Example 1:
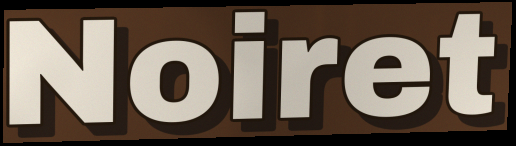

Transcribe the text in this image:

Noiret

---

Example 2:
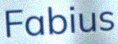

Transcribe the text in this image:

Fabius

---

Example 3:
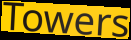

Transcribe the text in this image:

Towers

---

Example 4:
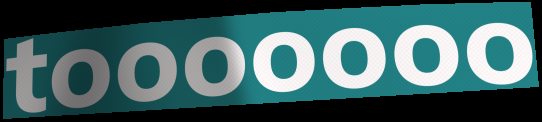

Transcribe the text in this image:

tooooooo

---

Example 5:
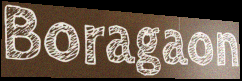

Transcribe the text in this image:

Boragaon